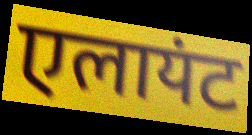
एलायंट